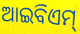
ଆଇବିଏମ୍